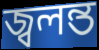
জ্বলন্ত